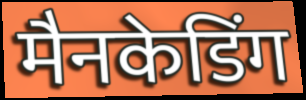
मैनकेडिंग